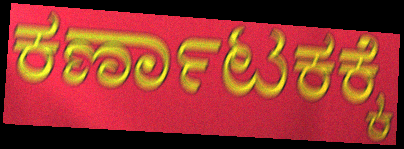
ಕರ್ಣಾಟಕಕ್ಕೆ